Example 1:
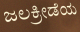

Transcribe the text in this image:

ಜಲಕ್ರೀಡೆಯ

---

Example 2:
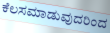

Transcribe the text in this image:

ಕೆಲಸಮಾಡುವುದರಿಂದ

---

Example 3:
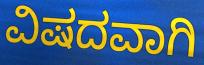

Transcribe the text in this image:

ವಿಷದವಾಗಿ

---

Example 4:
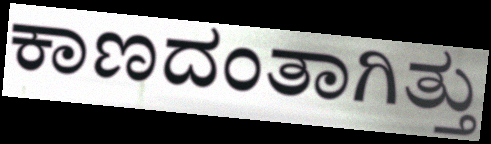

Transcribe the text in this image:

ಕಾಣದಂತಾಗಿತ್ತು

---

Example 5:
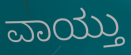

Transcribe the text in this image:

ವಾಯ್ತು